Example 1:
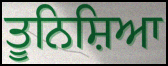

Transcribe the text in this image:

ਤੂਨਿਸ਼ਿਆ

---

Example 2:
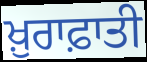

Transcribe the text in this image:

ਖ਼ੁਰਾਫ਼ਾਤੀ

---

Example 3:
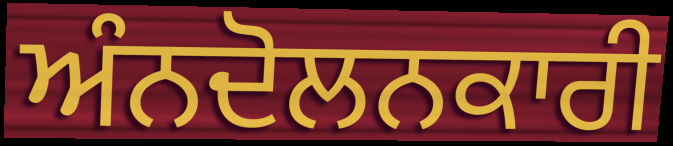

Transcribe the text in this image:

ਅੰਨਦੋਲਨਕਾਰੀ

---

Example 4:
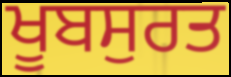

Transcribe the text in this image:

ਖੂਬਸੁਰਤ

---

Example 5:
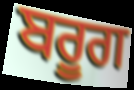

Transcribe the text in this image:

ਬਰੂਗ